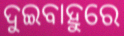
ଦୁଇବାହୁରେ